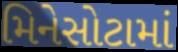
મિનેસોટામાં